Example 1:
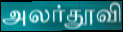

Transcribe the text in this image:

அலர்தூவி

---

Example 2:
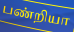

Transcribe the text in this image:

பண்றியா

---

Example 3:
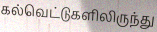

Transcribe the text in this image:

கல்வெட்டுகளிலிருந்து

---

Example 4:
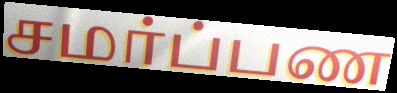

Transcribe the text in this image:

சமர்ப்பண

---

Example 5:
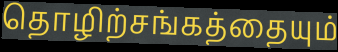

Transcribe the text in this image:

தொழிற்சங்கத்தையும்